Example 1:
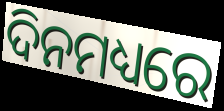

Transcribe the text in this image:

ଦିନମଧ୍ୟରେ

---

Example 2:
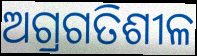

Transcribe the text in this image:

ଅଗ୍ରଗତିଶୀଳ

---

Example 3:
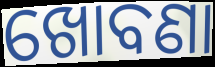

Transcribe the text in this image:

ଖୋବଣା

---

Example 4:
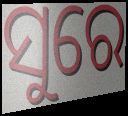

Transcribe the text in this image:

ସୁରେ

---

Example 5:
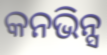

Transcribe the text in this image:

କନଭିନ୍ସ